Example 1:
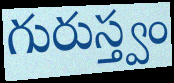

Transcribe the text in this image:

గురుస్త్వం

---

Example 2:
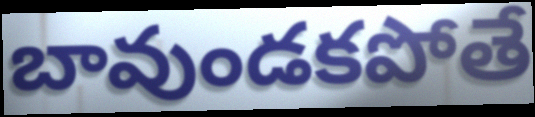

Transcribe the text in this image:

బావుండకపోతే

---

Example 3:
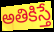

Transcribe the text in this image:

అతికిస్తే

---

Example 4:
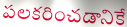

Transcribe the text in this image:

పలకరించడానికే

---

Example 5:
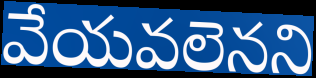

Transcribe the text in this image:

వేయవలెనని